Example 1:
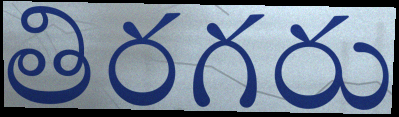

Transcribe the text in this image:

తిరగరు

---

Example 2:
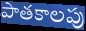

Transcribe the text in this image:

పాతకాలపు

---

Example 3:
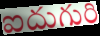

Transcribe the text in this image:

ఐదుగురి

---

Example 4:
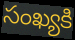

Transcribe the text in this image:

సంఖ్యకి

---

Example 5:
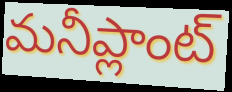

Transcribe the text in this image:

మనీప్లాంట్